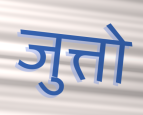
जुत्तो